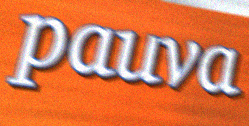
pauva